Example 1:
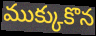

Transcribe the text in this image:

ముక్కుకొన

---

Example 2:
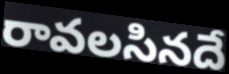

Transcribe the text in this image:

రావలసినదే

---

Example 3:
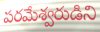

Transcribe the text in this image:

పరమేశ్వరుడిని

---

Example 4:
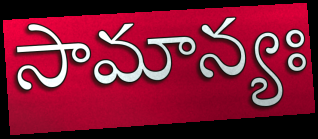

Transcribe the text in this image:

సామాన్యః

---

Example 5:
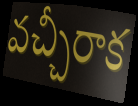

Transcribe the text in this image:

వచ్చీరాక